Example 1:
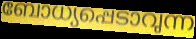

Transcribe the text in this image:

ബോധ്യപ്പെടാവുന്ന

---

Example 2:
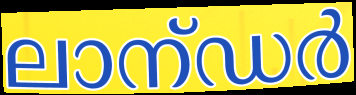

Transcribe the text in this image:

ലാന്ഡർ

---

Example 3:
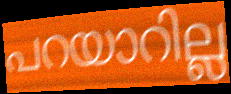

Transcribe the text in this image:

പറയാറില്ല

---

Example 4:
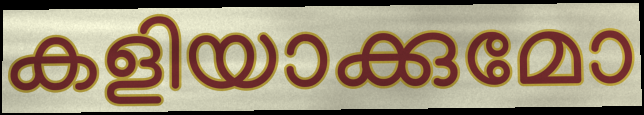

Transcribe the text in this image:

കളിയാക്കുമോ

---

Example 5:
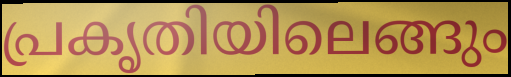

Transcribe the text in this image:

പ്രകൃതിയിലെങ്ങും